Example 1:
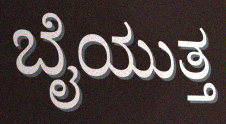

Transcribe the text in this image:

ಬೈಯುತ್ತ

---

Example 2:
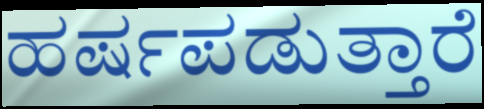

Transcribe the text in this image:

ಹರ್ಷಪಡುತ್ತಾರೆ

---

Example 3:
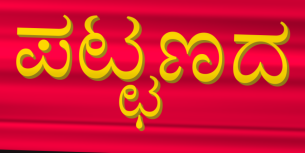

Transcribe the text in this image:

ಪಟ್ಟಣದ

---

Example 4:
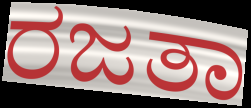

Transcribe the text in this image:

ರಜತಾ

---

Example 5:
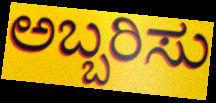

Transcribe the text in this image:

ಅಬ್ಬರಿಸು